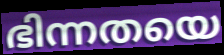
ഭിന്നതയെ